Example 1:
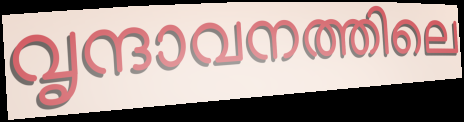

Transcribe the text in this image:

വൃന്ദാവനത്തിലെ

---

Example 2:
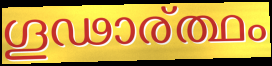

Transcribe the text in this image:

ഗൂഢാര്ത്ഥം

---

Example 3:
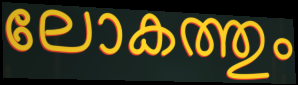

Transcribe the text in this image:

ലോകത്തും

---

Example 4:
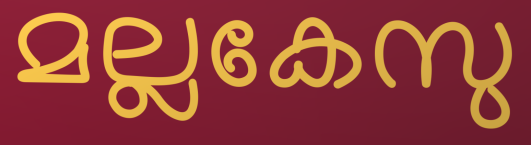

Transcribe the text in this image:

മല്ലകേസു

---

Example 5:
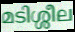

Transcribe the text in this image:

മടിശ്ശീല